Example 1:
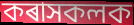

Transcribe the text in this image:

কৰাসকলক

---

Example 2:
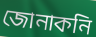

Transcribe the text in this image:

জোনাকনি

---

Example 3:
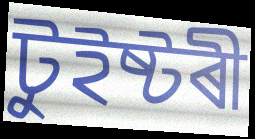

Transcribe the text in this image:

টুইষ্টৰী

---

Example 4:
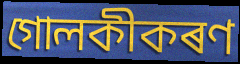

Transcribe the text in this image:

গোলকীকৰণ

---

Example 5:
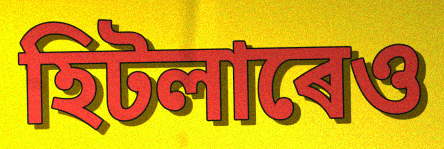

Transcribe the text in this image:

হিটলাৰেও